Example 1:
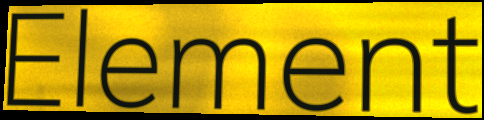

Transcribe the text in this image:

Element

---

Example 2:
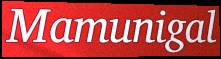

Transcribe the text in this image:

Mamunigal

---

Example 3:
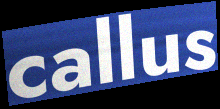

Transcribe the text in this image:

callus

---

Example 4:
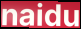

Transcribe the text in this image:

naidu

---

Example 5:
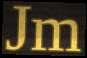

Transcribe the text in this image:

Jm